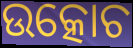
ଉତ୍କୋଚ